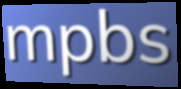
mpbs